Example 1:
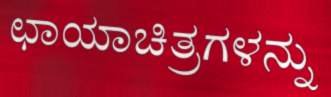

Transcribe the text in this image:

ಛಾಯಾಚಿತ್ರಗಳನ್ನು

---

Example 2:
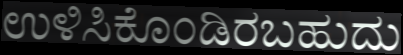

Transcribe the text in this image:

ಉಳಿಸಿಕೊಂಡಿರಬಹುದು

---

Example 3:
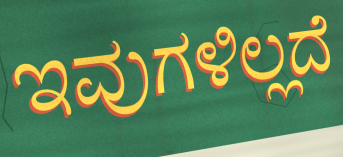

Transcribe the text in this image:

ಇವುಗಳಿಲ್ಲದೆ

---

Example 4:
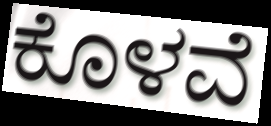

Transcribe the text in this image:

ಕೊಳವೆ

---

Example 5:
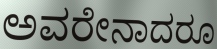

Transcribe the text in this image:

ಅವರೇನಾದರೂ